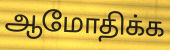
ஆமோதிக்க